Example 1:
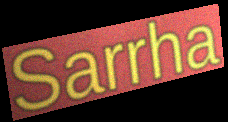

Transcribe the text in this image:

Sarrha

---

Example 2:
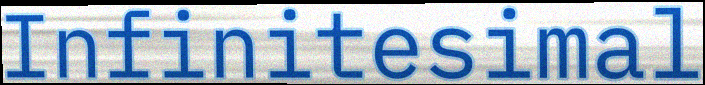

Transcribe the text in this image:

Infinitesimal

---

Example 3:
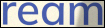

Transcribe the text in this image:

ream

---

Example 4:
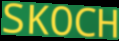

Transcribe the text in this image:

SKOCH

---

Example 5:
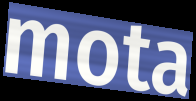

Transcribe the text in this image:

mota